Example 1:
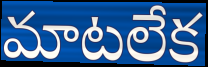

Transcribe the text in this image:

మాటలేక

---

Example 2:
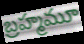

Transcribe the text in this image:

బ్రహ్మమూ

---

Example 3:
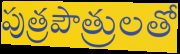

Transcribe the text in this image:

పుత్రపౌత్రులతో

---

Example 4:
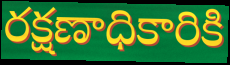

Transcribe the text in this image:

రక్షణాధికారికి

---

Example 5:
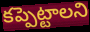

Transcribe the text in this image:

కప్పెట్టాలని